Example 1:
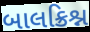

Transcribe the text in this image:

બાલક્રિશ્ન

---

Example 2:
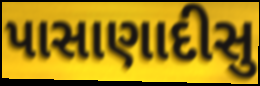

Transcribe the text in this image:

પાસાણાદીસુ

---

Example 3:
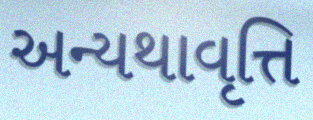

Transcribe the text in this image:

અન્યથાવૃત્તિ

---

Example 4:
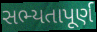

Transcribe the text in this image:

સભ્યતાપૂર્ણ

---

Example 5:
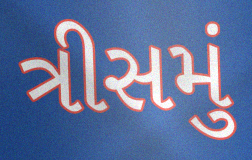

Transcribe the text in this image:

ત્રીસમું